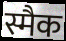
स्मैक